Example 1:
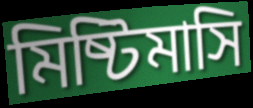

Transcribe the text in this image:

মিষ্টিমাসি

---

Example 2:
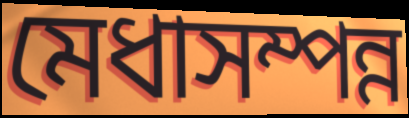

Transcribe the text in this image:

মেধাসম্পন্ন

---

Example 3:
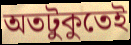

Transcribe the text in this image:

অতটুকুতেই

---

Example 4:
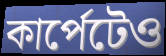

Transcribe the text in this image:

কার্পেটেও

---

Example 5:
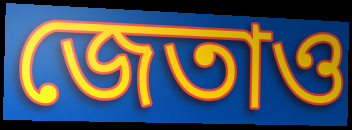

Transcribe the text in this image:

জেতাও